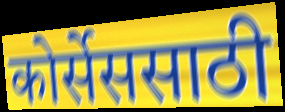
कोर्सेससाठी